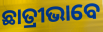
ଛାତ୍ରୀଭାବେ